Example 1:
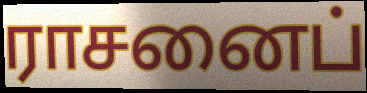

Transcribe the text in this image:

ராசனைப்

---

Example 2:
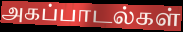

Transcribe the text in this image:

அகப்பாடல்கள்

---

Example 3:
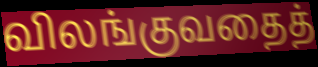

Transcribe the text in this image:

விலங்குவதைத்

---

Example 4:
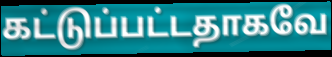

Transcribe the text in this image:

கட்டுப்பட்டதாகவே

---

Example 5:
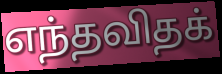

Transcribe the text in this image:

எந்தவிதக்